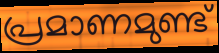
പ്രമാണമുണ്ട്